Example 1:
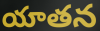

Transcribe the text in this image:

యాతన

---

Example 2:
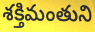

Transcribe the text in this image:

శక్తిమంతుని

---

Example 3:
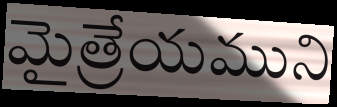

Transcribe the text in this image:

మైత్రేయముని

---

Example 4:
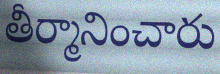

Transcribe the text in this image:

తీర్మానించారు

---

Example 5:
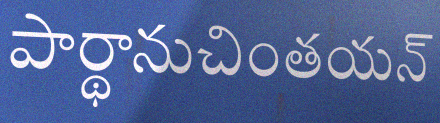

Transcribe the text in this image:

పార్థానుచింతయన్